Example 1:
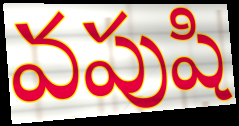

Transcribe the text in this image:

వపుషి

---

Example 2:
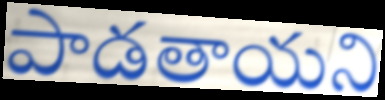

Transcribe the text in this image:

పాడతాయని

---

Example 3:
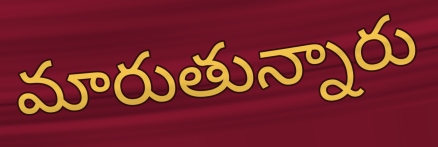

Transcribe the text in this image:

మారుతున్నారు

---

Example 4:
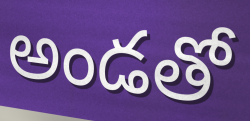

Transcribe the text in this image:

అండతో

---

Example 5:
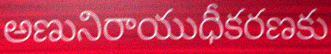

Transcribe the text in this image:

అణునిరాయుధీకరణకు